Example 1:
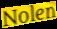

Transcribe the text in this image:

Nolen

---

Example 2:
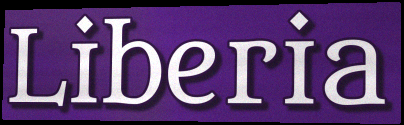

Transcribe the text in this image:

Liberia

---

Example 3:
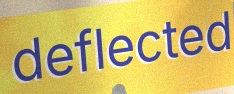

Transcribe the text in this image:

deflected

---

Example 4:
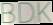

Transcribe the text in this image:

BDK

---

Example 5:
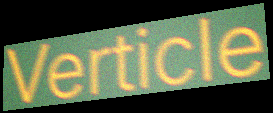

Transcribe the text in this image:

Verticle